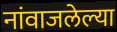
नांवाजलेल्या